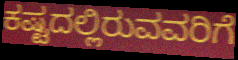
ಕಷ್ಟದಲ್ಲಿರುವವರಿಗೆ